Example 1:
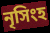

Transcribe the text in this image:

নৃসিংহ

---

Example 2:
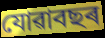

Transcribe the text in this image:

যোৱাবছৰ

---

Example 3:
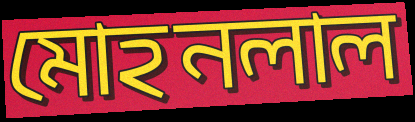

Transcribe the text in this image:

মোহনলাল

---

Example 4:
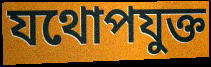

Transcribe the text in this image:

যথোপযুক্ত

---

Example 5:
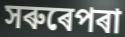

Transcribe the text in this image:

সৰুৰেপৰা